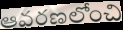
ఆవరణలోంచి